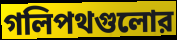
গলিপথগুলোর